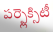
పర్ప్లెక్సిటీ